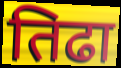
तिढा